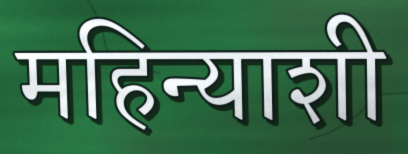
महिन्याशी